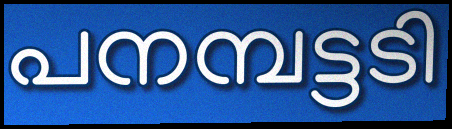
പനമ്പട്ടടി